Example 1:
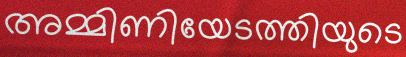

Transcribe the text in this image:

അമ്മിണിയേടത്തിയുടെ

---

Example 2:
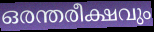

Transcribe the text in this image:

ഒരന്തരീക്ഷവും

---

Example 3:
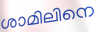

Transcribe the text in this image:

ശാമിലിനെ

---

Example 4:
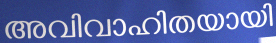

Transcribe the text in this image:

അവിവാഹിതയായി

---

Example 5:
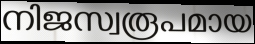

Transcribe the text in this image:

നിജസ്വരൂപമായ